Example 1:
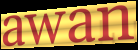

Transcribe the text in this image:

awan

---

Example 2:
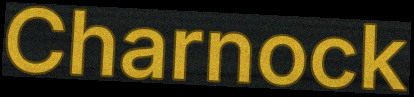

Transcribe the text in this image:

Charnock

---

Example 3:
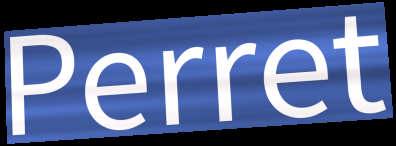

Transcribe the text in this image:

Perret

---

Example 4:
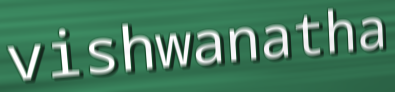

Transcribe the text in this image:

vishwanatha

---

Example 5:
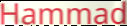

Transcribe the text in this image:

Hammad